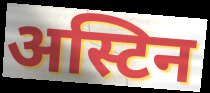
अस्टिन